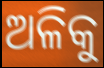
ଅଳିକୁ